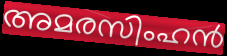
അമരസിംഹൻ